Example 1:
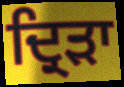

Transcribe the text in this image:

ਦ੍ਰਿੜਾ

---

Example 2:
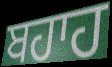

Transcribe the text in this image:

ਬਹਾਹ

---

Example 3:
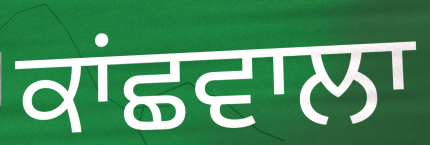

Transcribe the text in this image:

ਕਾਂਛਵਾਲਾ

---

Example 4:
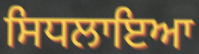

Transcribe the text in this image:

ਸਿਧਲਾਇਆ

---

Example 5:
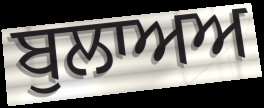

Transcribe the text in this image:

ਬੁਲਾਅਅ